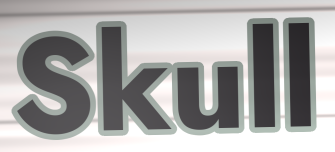
Skull